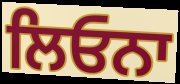
ਲਿਓਨਾ